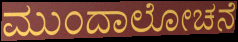
ಮುಂದಾಲೋಚನೆ